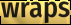
wraps